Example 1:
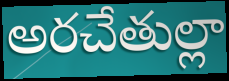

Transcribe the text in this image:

అరచేతుల్లా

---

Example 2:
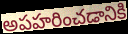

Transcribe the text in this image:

అపహరించడానికి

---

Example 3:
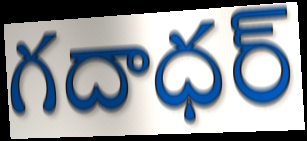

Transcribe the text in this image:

గదాధర్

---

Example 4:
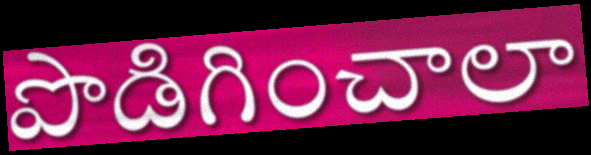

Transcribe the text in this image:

పొడిగించాలా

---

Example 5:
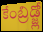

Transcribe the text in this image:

కేంబ్రిడ్జ్లో